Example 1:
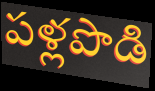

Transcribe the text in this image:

పళ్లపొడి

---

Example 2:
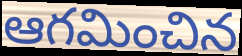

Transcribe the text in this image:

ఆగమించిన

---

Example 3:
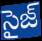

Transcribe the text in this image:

సైజ్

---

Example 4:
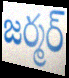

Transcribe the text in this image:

జర్మర్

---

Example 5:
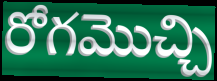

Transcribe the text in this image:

రోగమొచ్చి